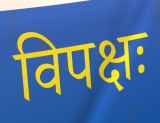
विपक्षः